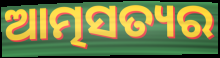
ଆତ୍ମସତ୍ୟର